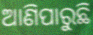
ଆଣିପାରୁଛି